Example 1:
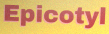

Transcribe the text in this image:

Epicotyl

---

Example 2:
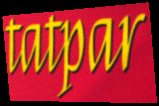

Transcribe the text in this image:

tatpar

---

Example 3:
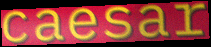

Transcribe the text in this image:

caesar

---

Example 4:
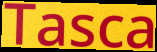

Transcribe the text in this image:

Tasca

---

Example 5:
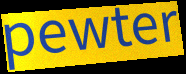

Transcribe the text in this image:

pewter